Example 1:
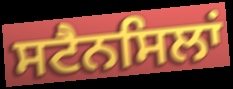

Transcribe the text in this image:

ਸਟੈਨਸਿਲਾਂ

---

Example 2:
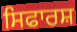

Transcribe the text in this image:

ਸਿਫਾਰਸ਼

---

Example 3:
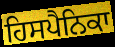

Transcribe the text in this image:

ਹਿਸਪੈਨਿਕਾ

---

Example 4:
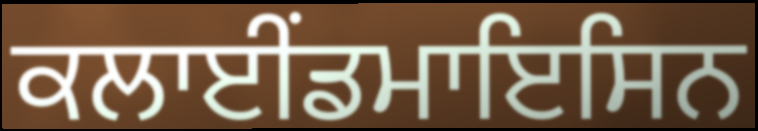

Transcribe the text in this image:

ਕਲਾਈਂਡਮਾਇਸਿਨ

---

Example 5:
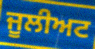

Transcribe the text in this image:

ਜੂਲੀਅਟ